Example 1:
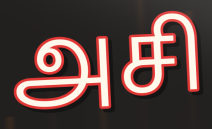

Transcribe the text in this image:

அசி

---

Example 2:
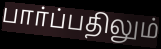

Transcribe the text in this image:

பார்ப்பதிலும்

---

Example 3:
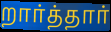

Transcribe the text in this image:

றார்த்தார்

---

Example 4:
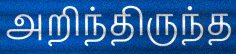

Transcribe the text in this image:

அறிந்திருந்த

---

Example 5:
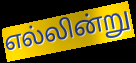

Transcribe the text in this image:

எல்லின்று